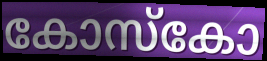
കോസ്കോ